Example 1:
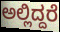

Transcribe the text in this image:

ಅಲ್ಲಿದ್ದರೆ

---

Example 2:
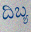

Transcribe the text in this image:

ದಿಬ್ಯ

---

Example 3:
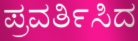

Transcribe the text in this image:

ಪ್ರವರ್ತಿಸಿದ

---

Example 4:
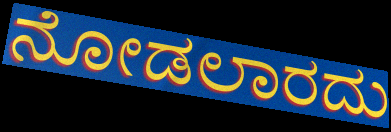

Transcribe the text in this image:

ನೋಡಲಾರದು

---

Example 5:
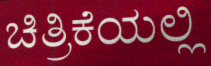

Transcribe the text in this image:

ಚಿತ್ರಿಕೆಯಲ್ಲಿ